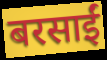
बरसाईं